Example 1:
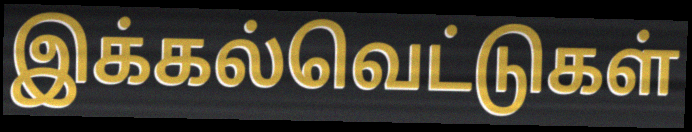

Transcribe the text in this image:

இக்கல்வெட்டுகள்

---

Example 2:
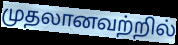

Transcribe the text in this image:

முதலானவற்றில்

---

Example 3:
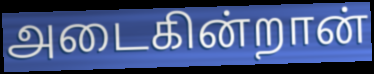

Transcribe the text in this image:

அடைகின்றான்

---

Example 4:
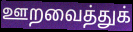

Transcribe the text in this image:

ஊறவைத்துக்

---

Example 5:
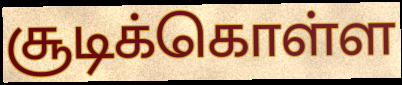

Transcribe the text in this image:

சூடிக்கொள்ள